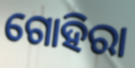
ଗୋହିରା